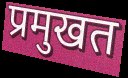
प्रमुखत